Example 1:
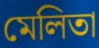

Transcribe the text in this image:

মেলিতা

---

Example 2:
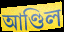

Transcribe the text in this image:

আণ্ডিল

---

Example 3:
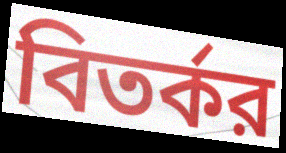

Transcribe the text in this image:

বিতর্কর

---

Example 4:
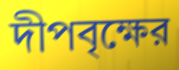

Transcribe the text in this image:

দীপবৃক্ষের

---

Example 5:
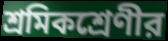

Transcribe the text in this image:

শ্রমিকশ্রেণীর